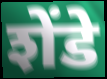
शेंडे